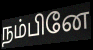
நம்பினே